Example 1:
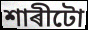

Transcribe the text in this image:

শাৰীটো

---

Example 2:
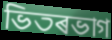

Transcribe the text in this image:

ভিতৰভাগ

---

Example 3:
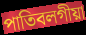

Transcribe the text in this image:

পাতিবলগীয়া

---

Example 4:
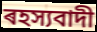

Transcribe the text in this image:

ৰহস্যবাদী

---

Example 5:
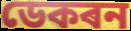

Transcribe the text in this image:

ডেকৰন